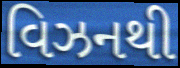
વિઝનથી